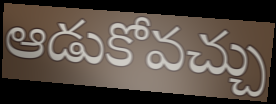
ఆడుకోవచ్చు